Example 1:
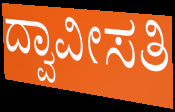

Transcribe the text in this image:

ದ್ವಾವೀಸತಿ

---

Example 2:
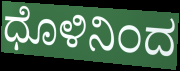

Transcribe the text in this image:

ಧೊಳಿನಿಂದ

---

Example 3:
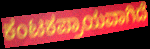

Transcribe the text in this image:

ಕಂಟಕಪ್ರಾಯವಾಗಿದೆ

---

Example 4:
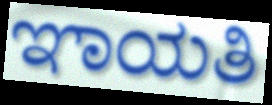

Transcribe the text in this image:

ಞಾಯತಿ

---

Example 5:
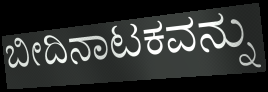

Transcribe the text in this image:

ಬೀದಿನಾಟಕವನ್ನು